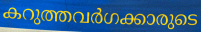
കറുത്തവർഗക്കാരുടെ